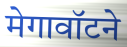
मेगावॉटने